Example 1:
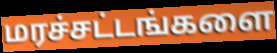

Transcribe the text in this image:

மரச்சட்டங்களை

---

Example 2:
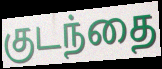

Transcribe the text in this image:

குடந்தை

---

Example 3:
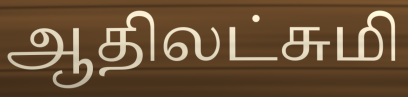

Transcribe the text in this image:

ஆதிலட்சுமி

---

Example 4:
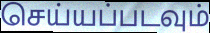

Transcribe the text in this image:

செய்யப்படவும்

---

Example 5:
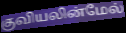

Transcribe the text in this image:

குவியலின்மேல்